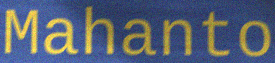
Mahanto